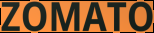
ZOMATO